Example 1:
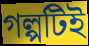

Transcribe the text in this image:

গল্পটিই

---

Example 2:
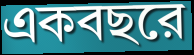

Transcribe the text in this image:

একবছরে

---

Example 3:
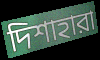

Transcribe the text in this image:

দিশাহারা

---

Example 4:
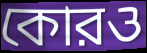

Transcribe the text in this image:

কোরও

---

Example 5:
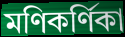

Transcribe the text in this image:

মণিকর্ণিকা